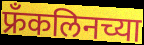
फ्रँकलिनच्या